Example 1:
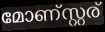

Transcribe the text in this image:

മോണ്സ്റ്റര്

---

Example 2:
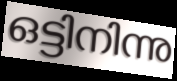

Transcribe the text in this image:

ഒട്ടിനിന്നു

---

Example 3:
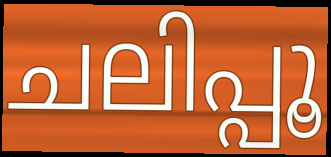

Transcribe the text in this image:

ചലിപ്പൂ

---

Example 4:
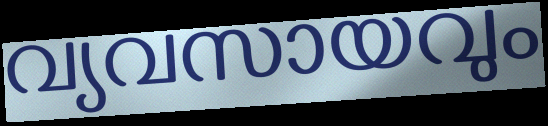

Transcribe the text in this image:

വ്യവസായവും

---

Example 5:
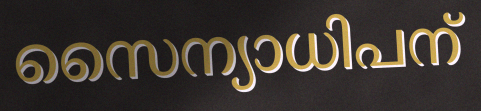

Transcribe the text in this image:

സൈന്യാധിപന്